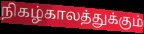
நிகழ்காலத்துக்கும்